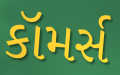
કૉમર્સ